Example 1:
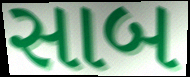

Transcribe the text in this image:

સાબ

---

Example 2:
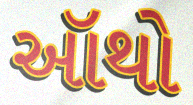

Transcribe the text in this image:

ઑથો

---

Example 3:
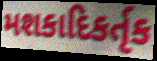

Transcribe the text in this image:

મશકાદિકર્તૃક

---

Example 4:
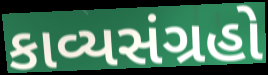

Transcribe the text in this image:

કાવ્યસંગ્રહો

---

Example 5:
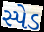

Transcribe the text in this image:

સ્પેડ